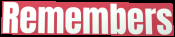
Remembers